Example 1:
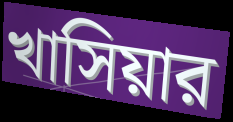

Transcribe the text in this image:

খাসিয়ার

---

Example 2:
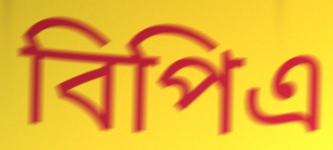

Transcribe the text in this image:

বিপিএ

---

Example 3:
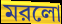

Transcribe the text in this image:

মরলো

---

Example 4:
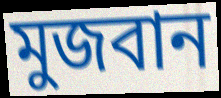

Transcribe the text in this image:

মুজবান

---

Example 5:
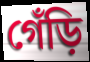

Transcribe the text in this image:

গেঁড়ি